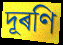
দূৰণি